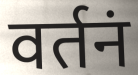
वर्तनं